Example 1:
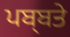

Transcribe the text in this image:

ਪਬ੍ਬਤੇ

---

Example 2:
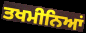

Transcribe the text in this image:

ਤਖਮੀਨਿਆਂ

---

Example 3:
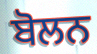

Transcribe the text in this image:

ਬੋਲਨ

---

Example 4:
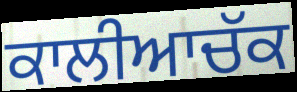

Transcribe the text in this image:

ਕਾਲੀਆਚੱਕ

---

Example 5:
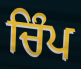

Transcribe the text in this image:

ਚਿੰਪ